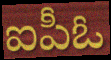
ఐపీఓ